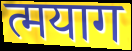
त्मयाग